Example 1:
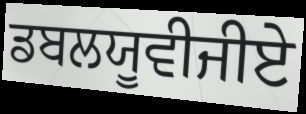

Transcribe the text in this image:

ਡਬਲਯੂਵੀਜੀਏ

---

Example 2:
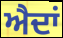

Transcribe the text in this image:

ਐਦਾਂ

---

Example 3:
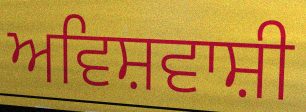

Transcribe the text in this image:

ਅਵਿਸ਼ਵਾਸ਼ੀ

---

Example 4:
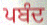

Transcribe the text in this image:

ਪਬੰਦ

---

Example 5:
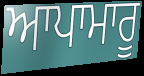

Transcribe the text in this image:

ਆਪਾਮਾਰੂ